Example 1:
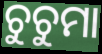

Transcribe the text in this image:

ଚୁଚୁମା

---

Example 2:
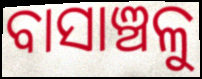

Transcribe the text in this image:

ବାସାଞ୍ଚଳୁ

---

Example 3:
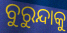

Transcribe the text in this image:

ବୁରୁନ୍ଦାକୁ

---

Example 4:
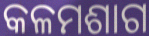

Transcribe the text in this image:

କଳମଶାଗ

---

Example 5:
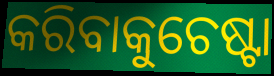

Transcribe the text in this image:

କରିବାକୁଚେଷ୍ଟା